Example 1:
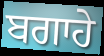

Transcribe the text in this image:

ਬਗਾਹੇ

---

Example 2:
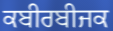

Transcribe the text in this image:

ਕਬੀਰਬੀਜਕ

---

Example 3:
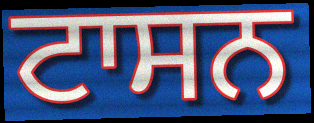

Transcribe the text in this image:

ਟਾਸਨ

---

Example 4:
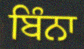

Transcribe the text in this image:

ਬਿੰਨਾ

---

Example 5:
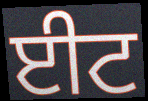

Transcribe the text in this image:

ਈਟ